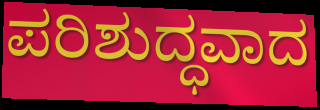
ಪರಿಶುದ್ಧವಾದ